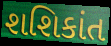
શશિકાંત